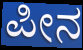
ಪೀನ